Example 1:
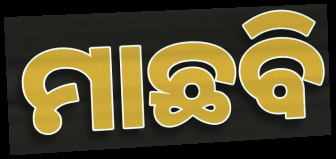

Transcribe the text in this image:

ମାଛବି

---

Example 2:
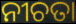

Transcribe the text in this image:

ନୀଚତା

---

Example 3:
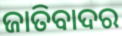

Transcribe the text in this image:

ଜାତିବାଦର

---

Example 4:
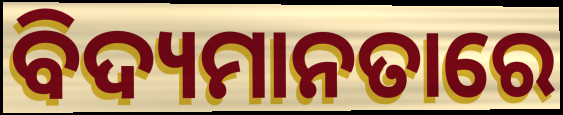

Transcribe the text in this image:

ବିଦ୍ୟମାନତାରେ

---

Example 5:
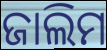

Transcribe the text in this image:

ଜାଲିମ